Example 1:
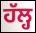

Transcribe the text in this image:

ਹੱਲ੍ਹ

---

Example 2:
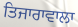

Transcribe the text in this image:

ਤਿਜਾਰਾਵਾਲਾ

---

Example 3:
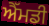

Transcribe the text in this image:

ਐੱਮਡੀ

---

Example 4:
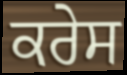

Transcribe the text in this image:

ਕਰੇਸ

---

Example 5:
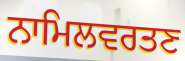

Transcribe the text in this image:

ਨਾਮਿਲਵਰਤਣ